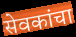
सेवकांचा